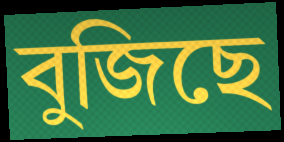
বুজিছে